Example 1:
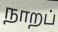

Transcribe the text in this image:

நாறப்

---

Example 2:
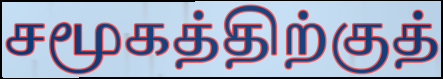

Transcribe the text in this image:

சமூகத்திற்குத்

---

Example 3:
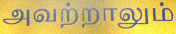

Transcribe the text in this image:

அவற்றாலும்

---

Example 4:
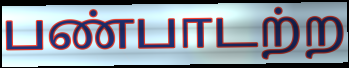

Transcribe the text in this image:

பண்பாடற்ற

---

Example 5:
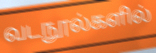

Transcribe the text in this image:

வடநூல்களில்